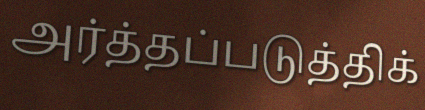
அர்த்தப்படுத்திக்